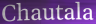
Chautala